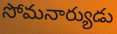
సోమనార్యుడు